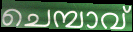
ചെമ്പാവ്